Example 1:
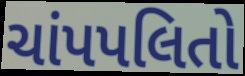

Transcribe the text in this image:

ચાંપપલિતો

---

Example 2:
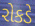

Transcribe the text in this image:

રોકડે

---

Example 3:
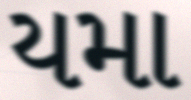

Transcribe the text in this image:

યમા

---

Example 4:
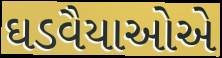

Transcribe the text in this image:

ઘડવૈયાઓએ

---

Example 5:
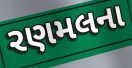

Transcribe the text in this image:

રણમલના